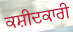
ਕਸ਼ੀਦਕਾਰੀ